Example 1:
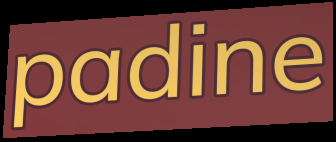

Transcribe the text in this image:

padine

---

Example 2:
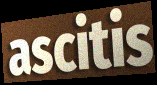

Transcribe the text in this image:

ascitis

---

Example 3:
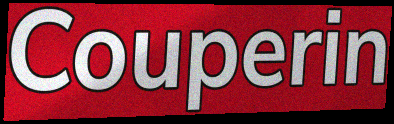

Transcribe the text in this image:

Couperin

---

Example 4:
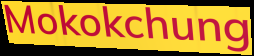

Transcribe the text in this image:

Mokokchung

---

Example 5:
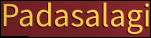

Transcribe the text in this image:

Padasalagi